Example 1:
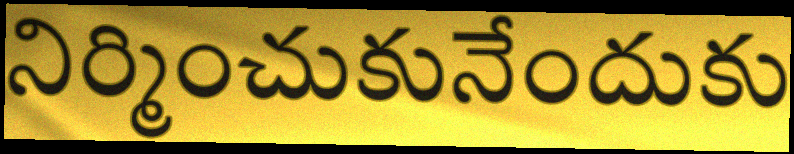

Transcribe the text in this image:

నిర్మించుకునేందుకు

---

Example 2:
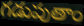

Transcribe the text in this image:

గడుపుతాం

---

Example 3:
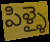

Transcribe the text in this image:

పిళ్ళై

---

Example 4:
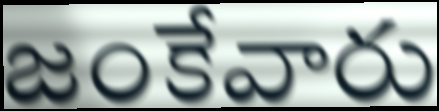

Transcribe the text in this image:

జంకేవారు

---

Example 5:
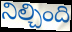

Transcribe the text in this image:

నిల్చింది